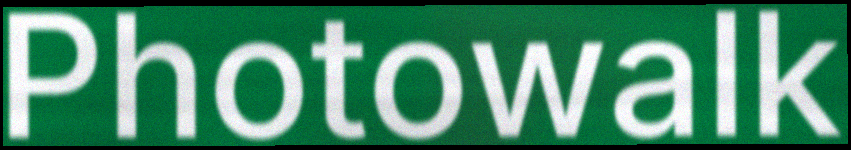
Photowalk